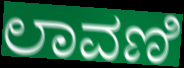
ಲಾವಣಿ